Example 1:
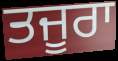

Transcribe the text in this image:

ਤਜੂਰਾ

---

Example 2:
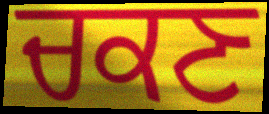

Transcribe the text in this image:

ਚਕਣ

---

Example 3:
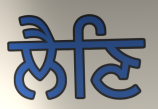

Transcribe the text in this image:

ਲੈਣਿ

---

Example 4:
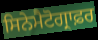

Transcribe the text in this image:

ਸਿਨੇਮੈਟੋਗ੍ਰਾਫ਼ਰ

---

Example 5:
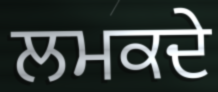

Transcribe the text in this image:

ਲਮਕਦੇ